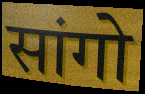
सांगो